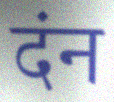
दंन